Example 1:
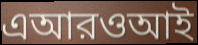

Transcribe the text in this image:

এআরওআই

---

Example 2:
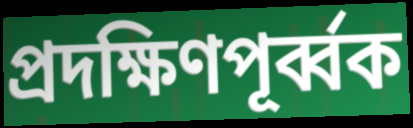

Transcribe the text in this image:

প্রদক্ষিণপূর্ব্বক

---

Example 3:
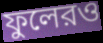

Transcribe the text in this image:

ফুলেরও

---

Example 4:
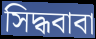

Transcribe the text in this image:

সিদ্ধবাবা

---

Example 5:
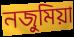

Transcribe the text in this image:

নজুমিয়া